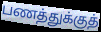
பணத்துக்குத்